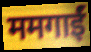
ममगाईं